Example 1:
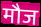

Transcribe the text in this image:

मौज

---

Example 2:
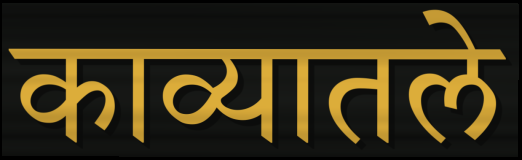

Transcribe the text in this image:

काव्यातले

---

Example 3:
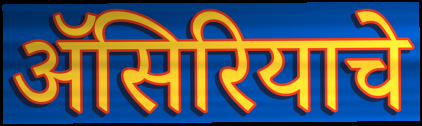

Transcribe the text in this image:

ॲसिरियाचे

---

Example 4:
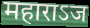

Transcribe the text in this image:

महाराऽज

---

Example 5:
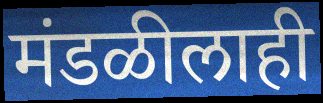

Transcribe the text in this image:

मंडळीलाही